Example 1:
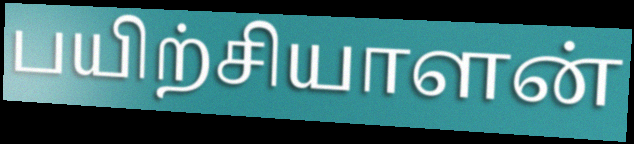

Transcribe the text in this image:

பயிற்சியாளன்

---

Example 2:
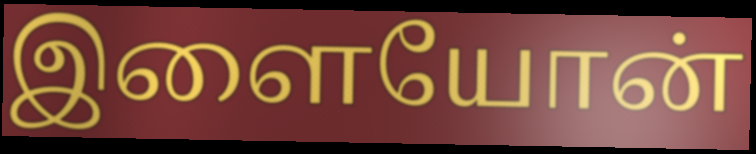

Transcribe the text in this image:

இளையோன்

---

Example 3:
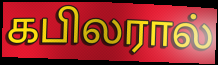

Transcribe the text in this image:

கபிலரால்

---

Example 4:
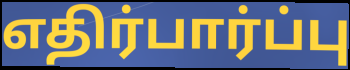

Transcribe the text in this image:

எதிர்பார்ப்பு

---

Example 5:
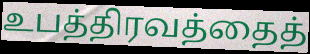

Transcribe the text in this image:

உபத்திரவத்தைத்